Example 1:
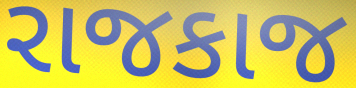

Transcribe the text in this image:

રાજકાજ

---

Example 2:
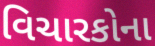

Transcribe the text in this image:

વિચારકોના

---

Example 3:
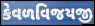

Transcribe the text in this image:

કેવળવિજયજી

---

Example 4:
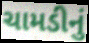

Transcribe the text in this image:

ચામડીનું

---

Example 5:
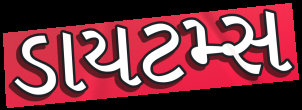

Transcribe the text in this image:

ડાયટમ્સ